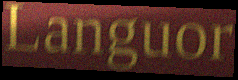
Languor